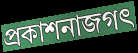
প্রকাশনাজগৎ